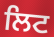
ਲਿਟ